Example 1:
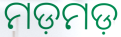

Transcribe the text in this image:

ମଡ଼ମଡ଼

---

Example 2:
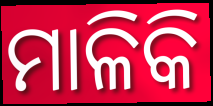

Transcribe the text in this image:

ମାଳିକି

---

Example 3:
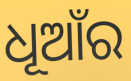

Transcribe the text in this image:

ଧୂଆଁର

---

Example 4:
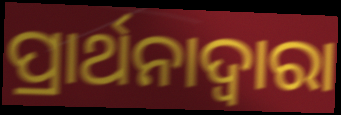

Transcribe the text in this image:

ପ୍ରାର୍ଥନାଦ୍ଵାରା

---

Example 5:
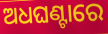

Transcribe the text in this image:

ଅଧଘଣ୍ଟାରେ